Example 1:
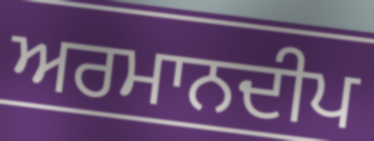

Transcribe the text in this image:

ਅਰਮਾਨਦੀਪ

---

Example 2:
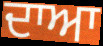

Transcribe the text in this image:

ਦਾਆ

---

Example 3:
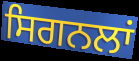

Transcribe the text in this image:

ਸਿਗਨਲਾਂ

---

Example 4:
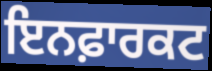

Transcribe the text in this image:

ਇਨਫ਼ਾਰਕਟ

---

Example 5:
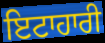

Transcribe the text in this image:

ਇਟਾਹਾਰੀ